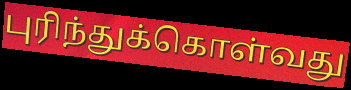
புரிந்துக்கொள்வது